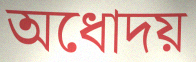
অধোদয়